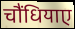
चौंधियाए